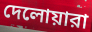
দেলোয়ারা